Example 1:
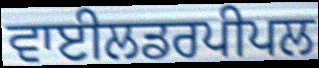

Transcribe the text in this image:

ਵਾਈਲਡਰਪੀਪਲ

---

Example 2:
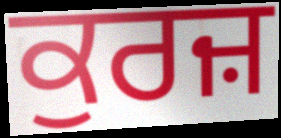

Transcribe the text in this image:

ਕੁਰਜ਼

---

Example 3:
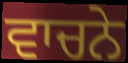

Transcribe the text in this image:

ਵਾਚਨੇ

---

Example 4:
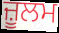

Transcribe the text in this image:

ਜ਼ੂਲਮ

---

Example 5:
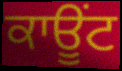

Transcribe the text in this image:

ਕਾਊਂਟ